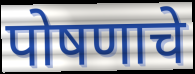
पोषणाचे